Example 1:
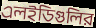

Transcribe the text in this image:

এলইডিগুলির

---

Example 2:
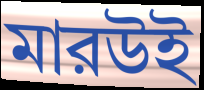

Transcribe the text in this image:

মারউই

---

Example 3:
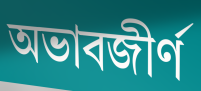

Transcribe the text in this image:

অভাবজীর্ণ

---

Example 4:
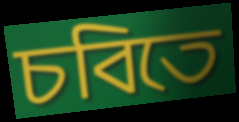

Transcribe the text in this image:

চবিতে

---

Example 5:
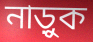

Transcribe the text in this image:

নাড়ুক